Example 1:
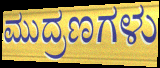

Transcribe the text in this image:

ಮುದ್ರಣಗಳು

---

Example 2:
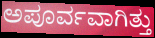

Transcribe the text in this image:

ಅಪೂರ್ವವಾಗಿತ್ತು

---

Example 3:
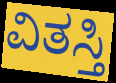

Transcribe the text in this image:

ವಿತಸ್ತಿ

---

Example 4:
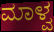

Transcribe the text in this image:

ಮಾಳ್ವ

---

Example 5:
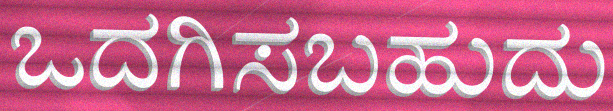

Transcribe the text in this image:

ಒದಗಿಸಬಹುದು